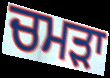
ਚਮੜਾ